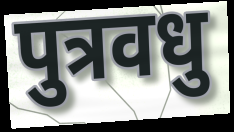
पुत्रवधु